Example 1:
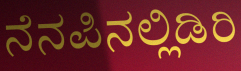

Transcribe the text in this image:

ನೆನಪಿನಲ್ಲಿಡಿರಿ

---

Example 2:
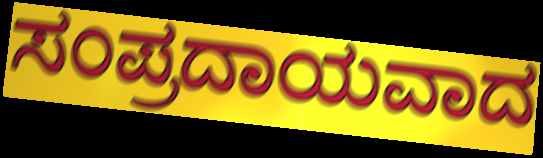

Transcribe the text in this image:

ಸಂಪ್ರದಾಯವಾದ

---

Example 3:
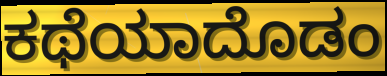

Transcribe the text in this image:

ಕಥೆಯಾದೊಡಂ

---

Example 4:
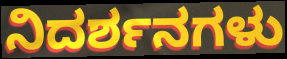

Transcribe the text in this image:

ನಿದರ್ಶನಗಳು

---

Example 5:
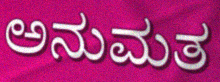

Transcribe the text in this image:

ಅನುಮತ